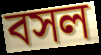
বসল